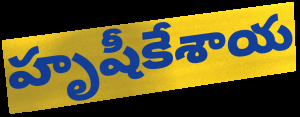
హృషీకేశాయ